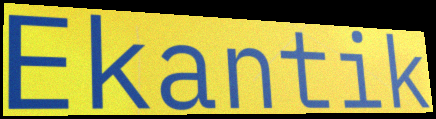
Ekantik